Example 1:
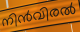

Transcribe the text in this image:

നിൻവിരൽ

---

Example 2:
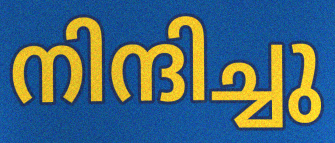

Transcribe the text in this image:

നിന്ദിച്ചു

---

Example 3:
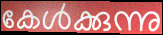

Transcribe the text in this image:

കേൾക്കുന്നു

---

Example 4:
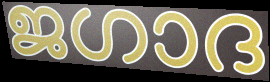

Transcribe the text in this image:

ജഗാദ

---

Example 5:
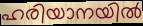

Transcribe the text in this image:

ഹരിയാനയിൽ